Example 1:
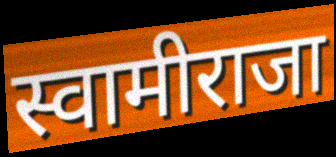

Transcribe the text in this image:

स्वामीराजा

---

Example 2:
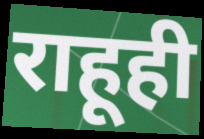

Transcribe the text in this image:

राहूही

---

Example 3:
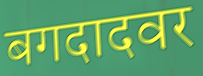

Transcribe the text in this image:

बगदादवर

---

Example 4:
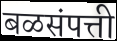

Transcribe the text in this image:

बळसंपत्ती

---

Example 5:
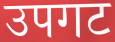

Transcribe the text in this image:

उपगट